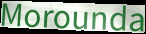
Morounda